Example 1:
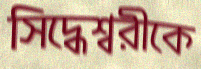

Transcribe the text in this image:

সিদ্ধেশ্বরীকে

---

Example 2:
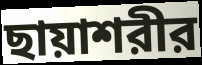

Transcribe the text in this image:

ছায়াশরীর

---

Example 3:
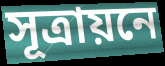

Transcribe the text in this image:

সূত্রায়নে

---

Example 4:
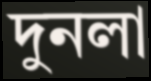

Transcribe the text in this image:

দুনলা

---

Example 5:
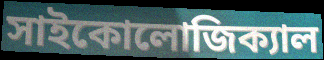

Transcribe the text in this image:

সাইকোলোজিক্যাল